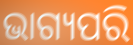
ଭାଗ୍ୟପରି